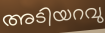
അടിയറവു